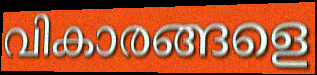
വികാരങ്ങളെ